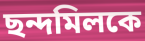
ছন্দমিলকে